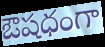
ఔషధంగా